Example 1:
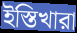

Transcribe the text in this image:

ইস্তিখারা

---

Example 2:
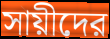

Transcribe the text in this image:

সায়ীদের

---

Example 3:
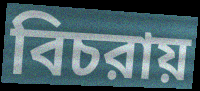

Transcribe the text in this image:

বিচরায়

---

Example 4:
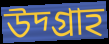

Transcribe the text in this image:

উদ্গ্রাহ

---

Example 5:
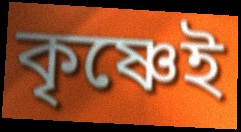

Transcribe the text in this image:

কৃষ্ণেই